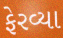
ફેરવ્યા